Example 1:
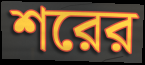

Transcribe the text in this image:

শরের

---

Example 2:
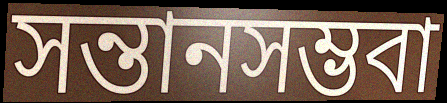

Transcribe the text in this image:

সন্তানসম্ভবা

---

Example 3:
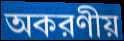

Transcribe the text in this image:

অকরণীয়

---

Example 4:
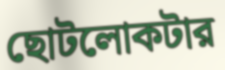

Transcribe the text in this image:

ছোটলোকটার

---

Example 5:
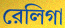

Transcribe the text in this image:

রেলিগা